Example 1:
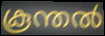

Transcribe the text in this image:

കൂന്തൽ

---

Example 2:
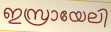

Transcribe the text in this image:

ഇസ്രായേലി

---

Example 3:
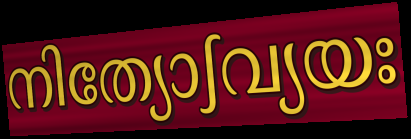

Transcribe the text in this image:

നിത്യോഽവ്യയഃ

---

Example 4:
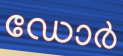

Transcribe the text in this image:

ഡോർ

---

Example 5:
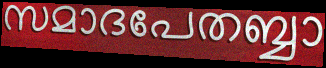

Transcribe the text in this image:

സമാദപേതബ്ബാ